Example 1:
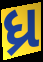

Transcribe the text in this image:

ધ્ર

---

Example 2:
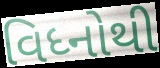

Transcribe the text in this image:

વિધ્નોથી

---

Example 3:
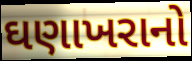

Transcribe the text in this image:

ઘણાખરાનો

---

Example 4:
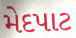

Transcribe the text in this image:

મેદપાટ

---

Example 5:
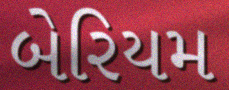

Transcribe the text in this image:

બેરિયમ